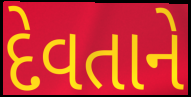
દેવતાને